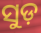
ସୁଡ଼